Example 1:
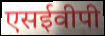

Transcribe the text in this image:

एसईवीपी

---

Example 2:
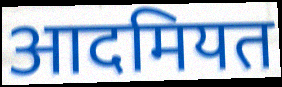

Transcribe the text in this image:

आदमियत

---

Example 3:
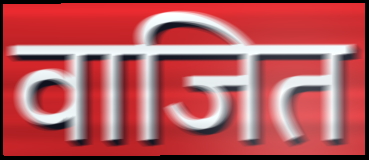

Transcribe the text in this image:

वाजित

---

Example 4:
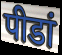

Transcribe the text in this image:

पीडां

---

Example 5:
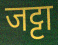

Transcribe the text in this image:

जट्टा